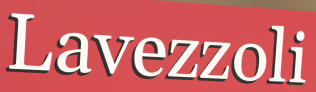
Lavezzoli